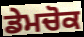
ਡੇਮਚੋਕ